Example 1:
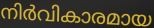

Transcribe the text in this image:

നിർവികാരമായ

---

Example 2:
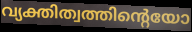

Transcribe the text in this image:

വ്യക്തിത്വത്തിന്റെയോ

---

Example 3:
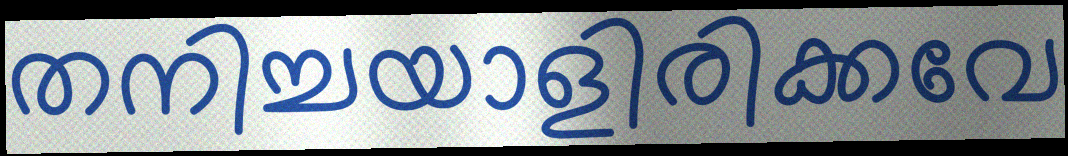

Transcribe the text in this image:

തനിച്ചയാളിരിക്കവേ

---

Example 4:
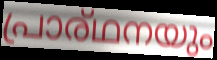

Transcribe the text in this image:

പ്രാര്ഥനയും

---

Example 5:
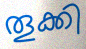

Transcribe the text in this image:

തൂക്കി